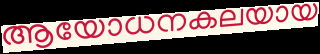
ആയോധനകലയായ